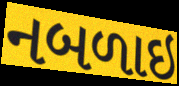
નબળાઇ